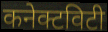
कनेक्टविटी